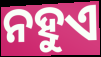
ନହୁଏ